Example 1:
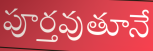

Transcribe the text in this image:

పూర్తవుతూనే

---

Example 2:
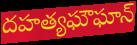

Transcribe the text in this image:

దహత్యఘౌఘాన్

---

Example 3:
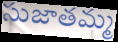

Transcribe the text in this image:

సుజాతమ్మ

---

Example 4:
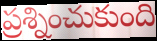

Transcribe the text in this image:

ప్రశ్నించుకుంది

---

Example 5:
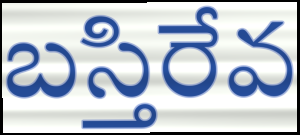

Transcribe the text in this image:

బస్తిరేవ